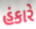
હંકારે